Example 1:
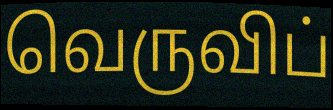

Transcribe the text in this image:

வெருவிப்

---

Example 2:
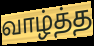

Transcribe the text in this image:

வாழ்த்த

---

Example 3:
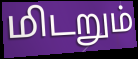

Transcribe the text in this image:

மிடறும்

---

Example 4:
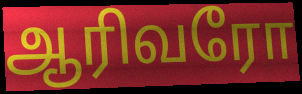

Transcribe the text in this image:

ஆரிவரோ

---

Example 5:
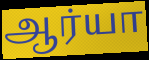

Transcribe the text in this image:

ஆர்யா